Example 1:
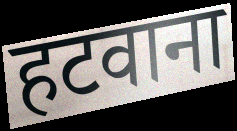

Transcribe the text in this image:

हटवाना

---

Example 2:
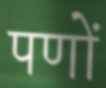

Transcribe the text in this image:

पणों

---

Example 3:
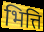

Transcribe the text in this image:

भित्ति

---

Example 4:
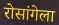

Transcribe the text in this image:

रोसांगेला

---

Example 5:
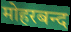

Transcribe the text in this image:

मोहरबन्द